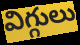
విగ్గులు